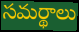
సమర్థాలు